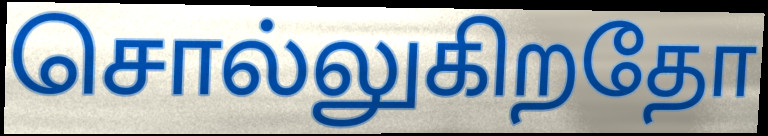
சொல்லுகிறதோ